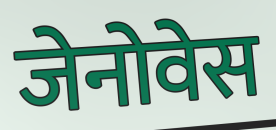
जेनोवेस